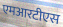
एमआरटीएस